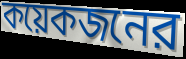
কয়েকজনের